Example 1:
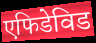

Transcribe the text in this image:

एफिडेविड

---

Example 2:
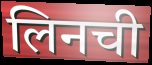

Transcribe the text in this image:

लिनची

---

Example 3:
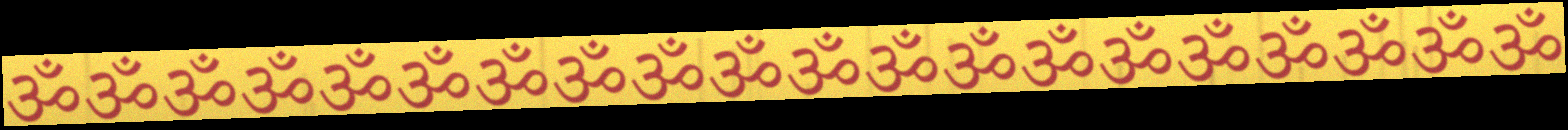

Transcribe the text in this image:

ॐॐॐॐॐॐॐॐॐॐॐॐॐॐॐॐॐॐॐॐ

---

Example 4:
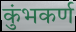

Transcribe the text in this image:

कुंभकर्ण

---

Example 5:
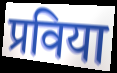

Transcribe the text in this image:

प्रविया